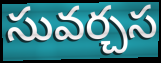
సువర్చస